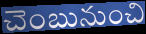
చెంబునుంచి